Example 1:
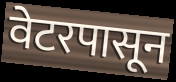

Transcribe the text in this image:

वेटरपासून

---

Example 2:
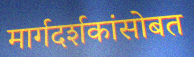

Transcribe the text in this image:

मार्गदर्शकांसोबत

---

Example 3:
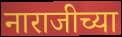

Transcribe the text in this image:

नाराजीच्या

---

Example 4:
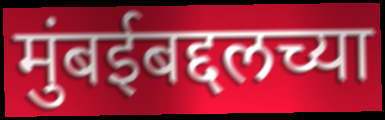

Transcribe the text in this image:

मुंबईबद्दलच्या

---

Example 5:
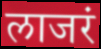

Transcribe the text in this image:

लाजरं